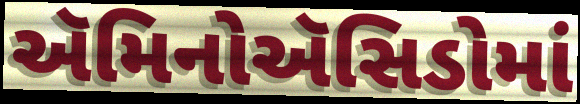
ઍમિનોઍસિડોમાં